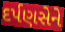
દર્પણસેને